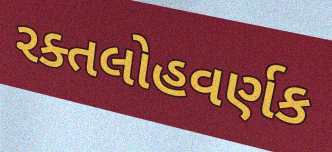
રક્તલોહવર્ણક